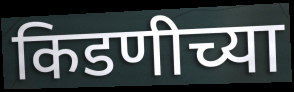
किडणीच्या